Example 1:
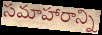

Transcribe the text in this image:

సమాహారాన్ని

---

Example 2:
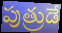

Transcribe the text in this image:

పుత్రుడే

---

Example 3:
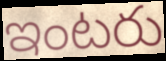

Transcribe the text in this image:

ఇంటరు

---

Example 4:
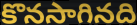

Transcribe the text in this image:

కొనసాగినది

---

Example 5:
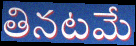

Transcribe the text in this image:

తినటమే